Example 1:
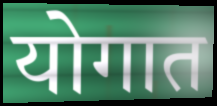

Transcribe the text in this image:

योगात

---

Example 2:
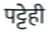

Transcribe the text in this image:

पट्टेही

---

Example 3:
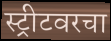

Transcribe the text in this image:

स्ट्रीटवरचा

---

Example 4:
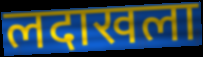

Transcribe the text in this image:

लदाखला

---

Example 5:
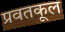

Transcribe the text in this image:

प्रवतकूल